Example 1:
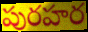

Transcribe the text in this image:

పురహర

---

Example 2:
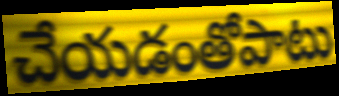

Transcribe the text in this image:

చేయడంతోపాటు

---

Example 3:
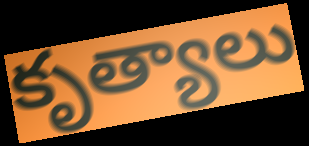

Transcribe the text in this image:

కృత్యాలు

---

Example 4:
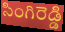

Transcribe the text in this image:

సింగిరెడ్డి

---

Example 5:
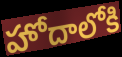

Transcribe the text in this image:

హోదాలోకి